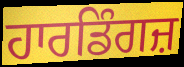
ਹਾਰਡਿੰਗਜ਼